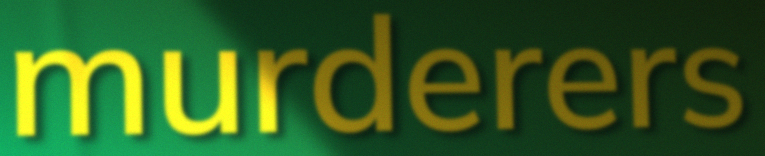
murderers